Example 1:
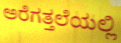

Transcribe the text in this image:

ಅರೆಗತ್ತಲೆಯಲ್ಲಿ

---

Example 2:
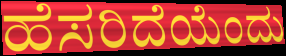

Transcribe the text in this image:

ಹೆಸರಿದೆಯೆಂದು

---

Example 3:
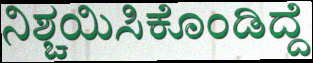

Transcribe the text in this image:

ನಿಶ್ಚಯಿಸಿಕೊಂಡಿದ್ದೆ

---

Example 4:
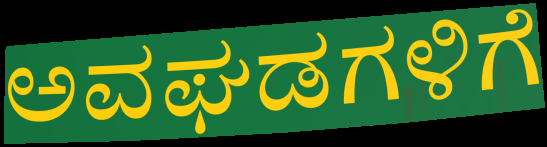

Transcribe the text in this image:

ಅವಘಡಗಳಿಗೆ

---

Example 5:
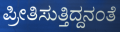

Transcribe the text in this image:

ಪ್ರೀತಿಸುತ್ತಿದ್ದನಂತೆ